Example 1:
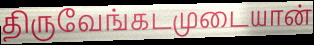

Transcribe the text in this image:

திருவேங்கடமுடையான்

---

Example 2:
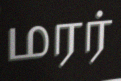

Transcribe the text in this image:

மரர்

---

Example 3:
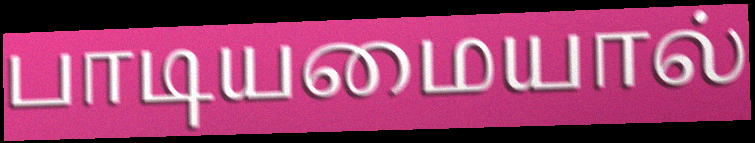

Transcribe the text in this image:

பாடியமையால்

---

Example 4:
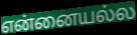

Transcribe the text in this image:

என்னையல்ல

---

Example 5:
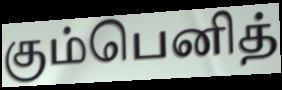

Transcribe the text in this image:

கும்பெனித்